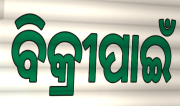
ବିକ୍ରୀପାଇଁ